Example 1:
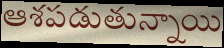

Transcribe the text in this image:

ఆశపడుతున్నాయి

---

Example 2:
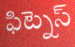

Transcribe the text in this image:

ఫిట్నెస్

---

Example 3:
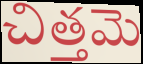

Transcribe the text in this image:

చిత్తమె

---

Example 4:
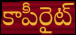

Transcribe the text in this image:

కాపీరైట్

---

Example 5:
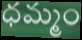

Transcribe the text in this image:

ధమ్మం